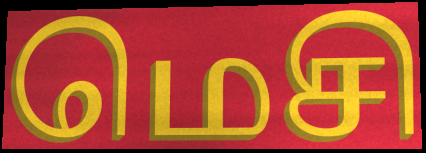
மெசி